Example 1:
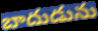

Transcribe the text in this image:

బాదుడును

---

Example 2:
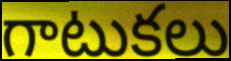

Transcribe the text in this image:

గాటుకలు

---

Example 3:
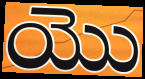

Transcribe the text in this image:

యొ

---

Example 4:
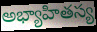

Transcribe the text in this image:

అభ్యాహితస్య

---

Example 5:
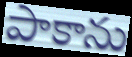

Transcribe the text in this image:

పాకాను